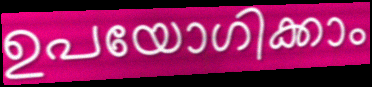
ഉപയോഗിക്കാം